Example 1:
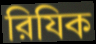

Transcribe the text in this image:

রিযিক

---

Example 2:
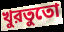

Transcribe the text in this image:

খুরতুতো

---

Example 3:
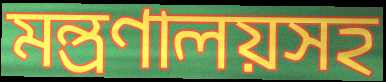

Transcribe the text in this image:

মন্ত্রণালয়সহ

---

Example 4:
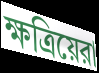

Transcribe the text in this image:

ক্ষত্রিয়েরা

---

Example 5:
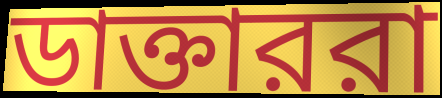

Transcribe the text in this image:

ডাক্তাররা